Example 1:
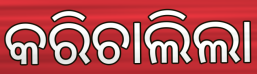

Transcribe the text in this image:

କରିଚାଲିଲା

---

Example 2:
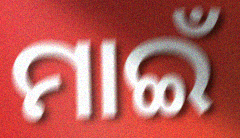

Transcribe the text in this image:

ମାଇଁ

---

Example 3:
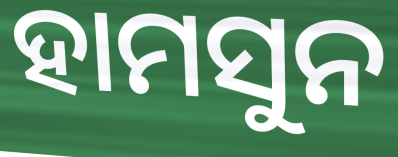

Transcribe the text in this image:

ହାମସୁନ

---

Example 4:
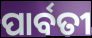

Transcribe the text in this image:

ପାର୍ବତୀ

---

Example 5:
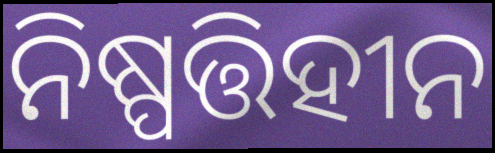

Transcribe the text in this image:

ନିଷ୍ପତ୍ତିହୀନ